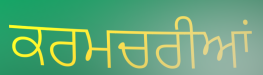
ਕਰਮਚਰੀਆਂ